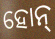
ହୋନ୍